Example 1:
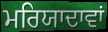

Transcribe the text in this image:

ਮਰਿਯਾਦਾਵਾਂ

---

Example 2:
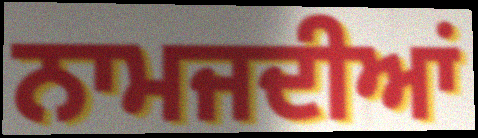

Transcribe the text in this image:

ਨਾਮਜਦੀਆਂ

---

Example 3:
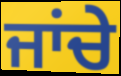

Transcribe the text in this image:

ਜਾਂਚੇ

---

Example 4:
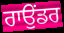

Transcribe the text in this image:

ਰਾਉਂਡਰ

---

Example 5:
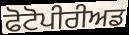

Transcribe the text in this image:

ਫੋਟੋਪੀਰੀਅਡ